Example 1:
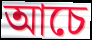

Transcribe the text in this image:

আচে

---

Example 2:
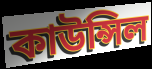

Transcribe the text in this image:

কাউন্সিল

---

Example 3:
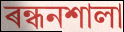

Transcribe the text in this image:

ৰন্ধনশালা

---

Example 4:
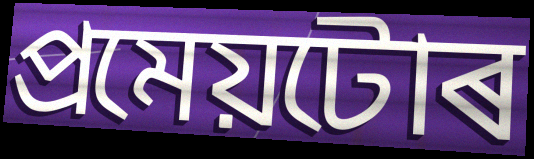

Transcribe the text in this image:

প্ৰমেয়টোৰ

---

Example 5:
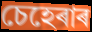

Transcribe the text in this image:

চেহেৰাৰ